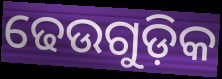
ଢେଉଗୁଡ଼ିକ